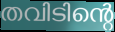
തവിടിന്റെ